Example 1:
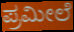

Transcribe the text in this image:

ಪ್ರಮೀಲೆ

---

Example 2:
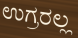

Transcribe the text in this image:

ಉಗ್ರರಲ್ಲ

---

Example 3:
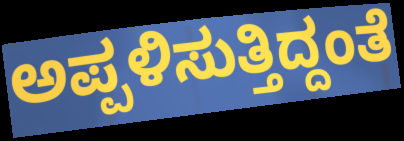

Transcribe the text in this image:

ಅಪ್ಪಳಿಸುತ್ತಿದ್ದಂತೆ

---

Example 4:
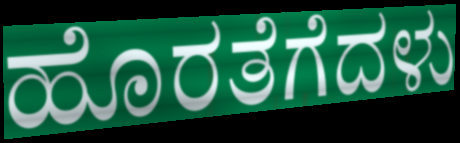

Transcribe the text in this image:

ಹೊರತೆಗೆದಳು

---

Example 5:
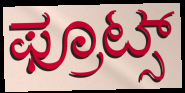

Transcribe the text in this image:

ಫ್ರೂಟ್ಸ್